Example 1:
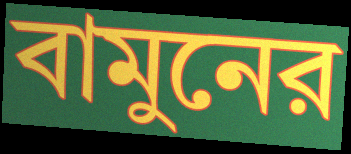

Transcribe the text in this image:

বামুনের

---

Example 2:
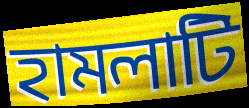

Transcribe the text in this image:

হামলাটি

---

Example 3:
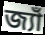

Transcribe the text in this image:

জ্যাঁ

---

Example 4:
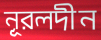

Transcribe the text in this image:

নূরলদীন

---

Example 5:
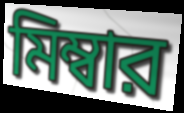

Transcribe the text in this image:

মিম্বার